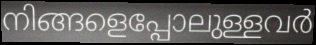
നിങ്ങളെപ്പോലുള്ളവർ